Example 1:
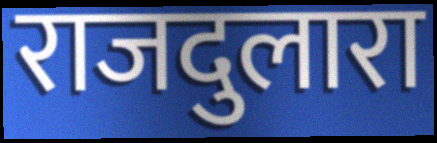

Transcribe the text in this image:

राजदुलारा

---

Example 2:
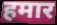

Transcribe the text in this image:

हमार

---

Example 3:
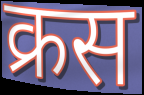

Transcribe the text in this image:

क्रस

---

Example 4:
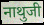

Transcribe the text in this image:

नाथुजी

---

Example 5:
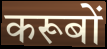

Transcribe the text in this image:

करूबों